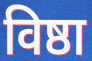
विष्ठा